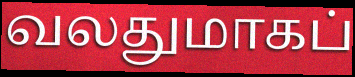
வலதுமாகப்